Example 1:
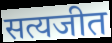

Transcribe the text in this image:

सत्यजीत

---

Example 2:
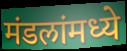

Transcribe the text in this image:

मंडलांमध्ये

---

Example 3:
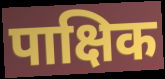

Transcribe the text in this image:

पाक्षिक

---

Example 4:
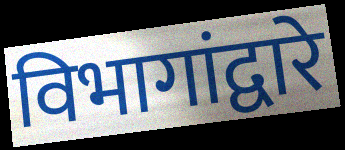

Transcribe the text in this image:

विभागांद्वारे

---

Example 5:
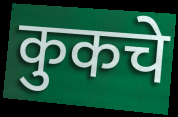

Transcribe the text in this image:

कुकचे